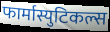
फार्मास्युटिकल्स